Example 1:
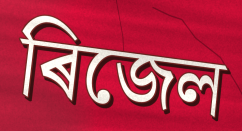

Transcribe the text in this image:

ৰিজেল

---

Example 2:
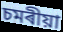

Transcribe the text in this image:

চমৰীয়া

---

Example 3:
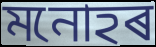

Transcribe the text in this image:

মনোহৰ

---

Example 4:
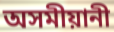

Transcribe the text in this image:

অসমীয়ানী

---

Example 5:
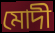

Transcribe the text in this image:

মোদী